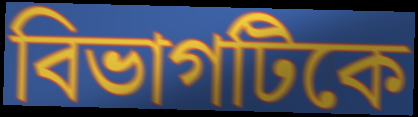
বিভাগটিকে